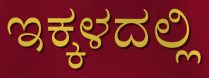
ಇಕ್ಕಳದಲ್ಲಿ